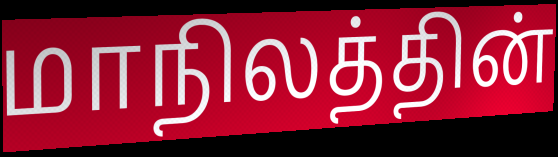
மாநிலத்தின்